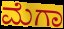
ಮೆಗಾ